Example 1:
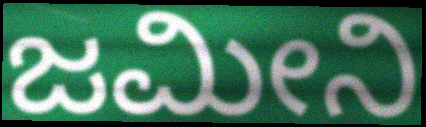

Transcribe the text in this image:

ಜಮೀನಿ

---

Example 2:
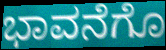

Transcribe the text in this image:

ಭಾವನೆಗೊ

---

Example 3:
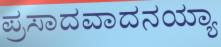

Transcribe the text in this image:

ಪ್ರಸಾದವಾದನಯ್ಯಾ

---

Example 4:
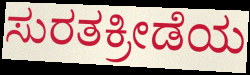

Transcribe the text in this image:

ಸುರತಕ್ರೀಡೆಯ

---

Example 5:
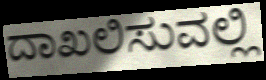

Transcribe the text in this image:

ದಾಖಲಿಸುವಲ್ಲಿ